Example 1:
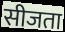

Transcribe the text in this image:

सीजता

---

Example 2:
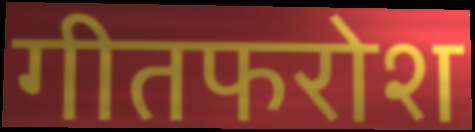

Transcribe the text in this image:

गीतफरोश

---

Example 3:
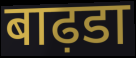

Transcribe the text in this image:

बाढ़डा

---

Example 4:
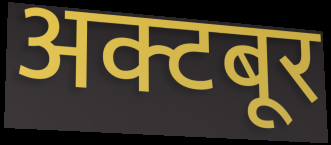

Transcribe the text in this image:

अक्टबूर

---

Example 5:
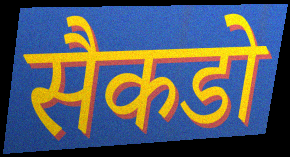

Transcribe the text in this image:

सैकडो